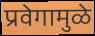
प्रवेगामुळे